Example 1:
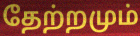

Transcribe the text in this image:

தேற்றமும்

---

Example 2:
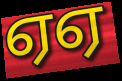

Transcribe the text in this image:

ஏஏ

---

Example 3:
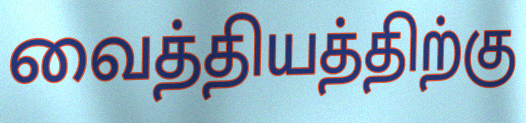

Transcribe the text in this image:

வைத்தியத்திற்கு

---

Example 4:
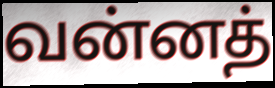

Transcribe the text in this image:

வன்னத்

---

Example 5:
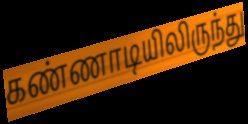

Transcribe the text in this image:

கண்ணாடியிலிருந்து